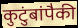
कुटुंबांपैकी